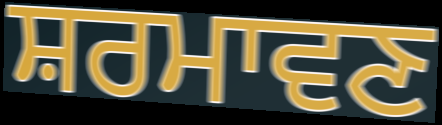
ਸ਼ਰਮਾਵਣ